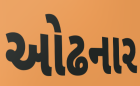
ઓઢનાર